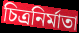
চিত্ৰনিৰ্মাতা